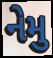
નેમુ